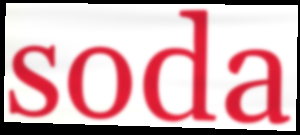
soda